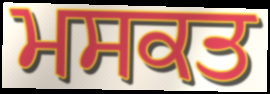
ਮਸਕਤ